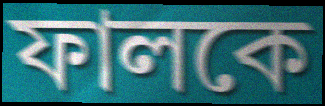
ফালকে